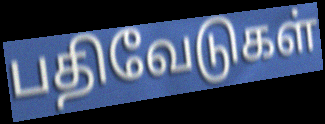
பதிவேடுகள்